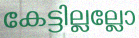
കേട്ടില്ലല്ലോ